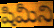
షిమీని